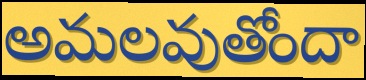
అమలవుతోందా